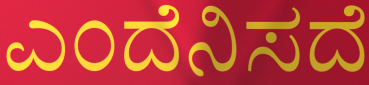
ಎಂದೆನಿಸದೆ